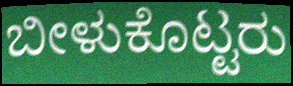
ಬೀಳುಕೊಟ್ಟರು